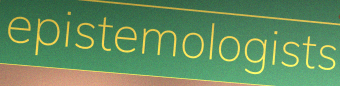
epistemologists